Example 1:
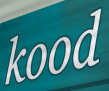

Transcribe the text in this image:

kood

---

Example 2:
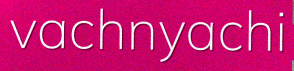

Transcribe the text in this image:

vachnyachi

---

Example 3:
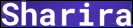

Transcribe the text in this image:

Sharira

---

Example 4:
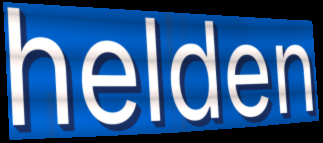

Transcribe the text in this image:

helden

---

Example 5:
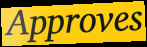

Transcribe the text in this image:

Approves